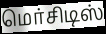
மெர்சிடிஸ்